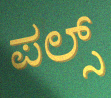
ಪಲ್ಸ್